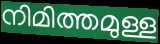
നിമിത്തമുള്ള